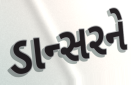
ડાન્સરને